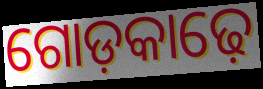
ଗୋଡ଼କାଢ଼େ